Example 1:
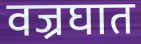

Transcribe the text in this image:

वज्रघात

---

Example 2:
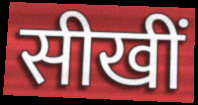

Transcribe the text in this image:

सीखीं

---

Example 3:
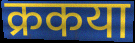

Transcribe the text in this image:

क्रकया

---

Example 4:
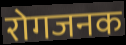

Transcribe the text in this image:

रोगजनक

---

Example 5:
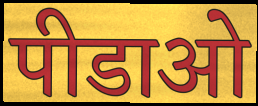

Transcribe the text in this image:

पीडाओ